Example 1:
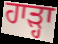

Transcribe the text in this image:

ਹਾੜ੍ਹਾ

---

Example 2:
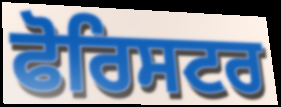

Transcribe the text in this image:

ਫੋਰਿਸਟਰ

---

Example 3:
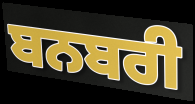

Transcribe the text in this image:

ਬਨਬਰੀ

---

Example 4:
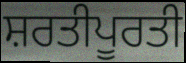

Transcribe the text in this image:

ਸ਼ਰਤੀਪੂਰਤੀ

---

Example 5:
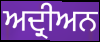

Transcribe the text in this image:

ਅਦ੍ਰੀਅਨ